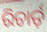
ରିଚାର୍ଡ଼